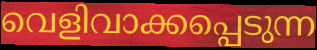
വെളിവാക്കപ്പെടുന്ന